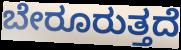
ಬೇರೂರುತ್ತದೆ